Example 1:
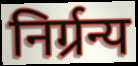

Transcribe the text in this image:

निर्ग्रन्य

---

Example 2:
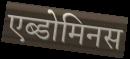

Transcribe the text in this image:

एब्डोमिनस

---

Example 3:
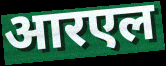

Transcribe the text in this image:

आरएल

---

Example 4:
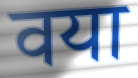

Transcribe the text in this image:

वया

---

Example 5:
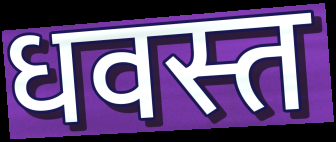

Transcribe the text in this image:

धवस्त